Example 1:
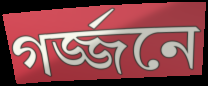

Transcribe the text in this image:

গর্জ্জনে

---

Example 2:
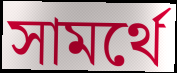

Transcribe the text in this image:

সামর্থে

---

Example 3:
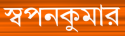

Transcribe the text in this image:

স্বপনকুমার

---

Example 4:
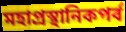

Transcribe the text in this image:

মহাপ্রস্থানিকপর্ব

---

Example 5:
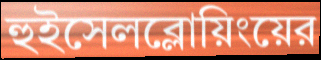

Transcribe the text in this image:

হুইসেলব্লোয়িংয়ের